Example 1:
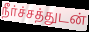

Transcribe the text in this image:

நீர்ச்சத்துடன்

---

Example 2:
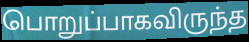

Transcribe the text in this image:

பொறுப்பாகவிருந்த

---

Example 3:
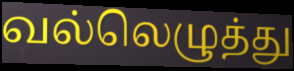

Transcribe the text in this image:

வல்லெழுத்து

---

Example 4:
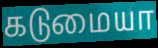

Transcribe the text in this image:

கடுமையா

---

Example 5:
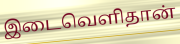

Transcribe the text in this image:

இடைவெளிதான்